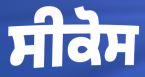
ਸੀਕੋਸ